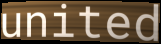
united